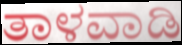
ತಾಳವಾಡಿ